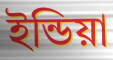
ইন্ডিয়া